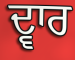
ਦ੍ਵਾਰ